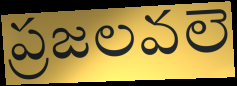
ప్రజలవలె